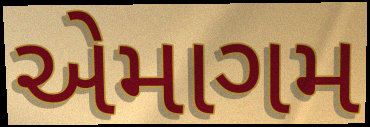
એમાગમ